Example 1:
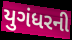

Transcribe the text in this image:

યુગંધરની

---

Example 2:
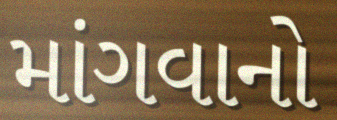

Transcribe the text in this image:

માંગવાનો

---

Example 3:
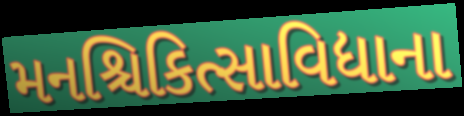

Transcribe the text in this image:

મનશ્ચિકિત્સાવિદ્યાના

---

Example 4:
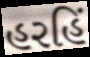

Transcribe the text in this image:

હરહિં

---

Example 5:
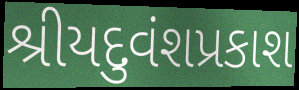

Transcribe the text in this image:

શ્રીયદુવંશપ્રકાશ